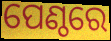
ପେଣ୍ଠରେ